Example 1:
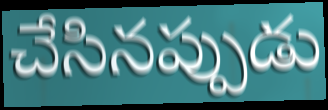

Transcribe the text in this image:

చేసినప్పుడు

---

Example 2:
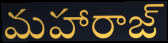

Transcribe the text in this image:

మహారాజ్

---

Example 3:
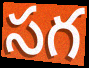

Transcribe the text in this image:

సగ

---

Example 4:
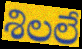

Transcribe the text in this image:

శిలలే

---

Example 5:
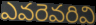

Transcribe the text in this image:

ఎవరెవరివి